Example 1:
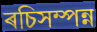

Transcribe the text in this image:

ৰচিসম্পন্ন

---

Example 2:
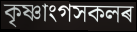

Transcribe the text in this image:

কৃষ্ণাংগসকলৰ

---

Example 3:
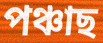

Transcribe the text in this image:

পঞ্চাছ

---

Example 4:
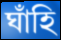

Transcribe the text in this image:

ঘাঁহি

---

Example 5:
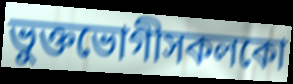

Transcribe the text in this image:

ভুক্তভোগীসকলকো